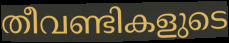
തീവണ്ടികളുടെ